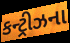
કન્ટ્રીઝના